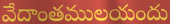
వేదాంతములయందు